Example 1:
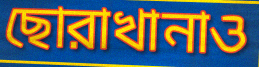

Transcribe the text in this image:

ছোরাখানাও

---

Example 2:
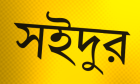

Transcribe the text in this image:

সইদুর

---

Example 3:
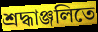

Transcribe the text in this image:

শ্রদ্ধাঞ্জলিতে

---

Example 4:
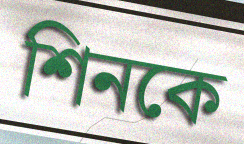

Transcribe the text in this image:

শিনকে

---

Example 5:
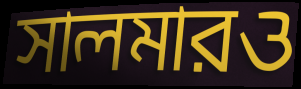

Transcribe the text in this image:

সালমারও